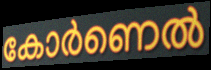
കോർണെൽ